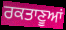
ਰਕਤਾਣੂਆਂ